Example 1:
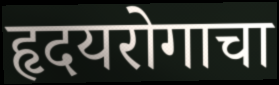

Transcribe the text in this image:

हृदयरोगाचा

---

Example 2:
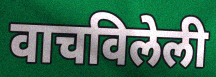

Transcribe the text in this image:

वाचविलेली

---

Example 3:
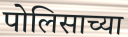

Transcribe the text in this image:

पोलिसाच्या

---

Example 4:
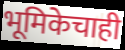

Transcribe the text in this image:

भूमिकेचाही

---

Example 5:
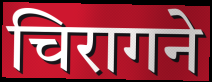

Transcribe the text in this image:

चिरागने